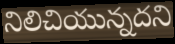
నిలిచియున్నదని